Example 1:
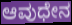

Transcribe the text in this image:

ಆವುಧೇನ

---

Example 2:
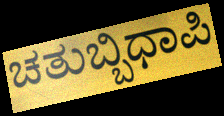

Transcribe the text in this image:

ಚತುಬ್ಬಿಧಾಪಿ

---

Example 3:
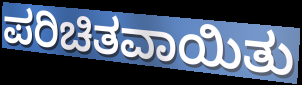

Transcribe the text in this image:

ಪರಿಚಿತವಾಯಿತು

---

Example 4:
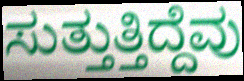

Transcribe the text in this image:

ಸುತ್ತುತ್ತಿದ್ದೆವು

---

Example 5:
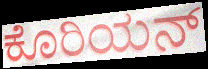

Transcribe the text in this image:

ಕೊರಿಯನ್